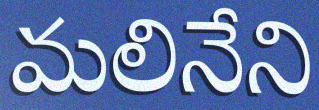
మలినేని